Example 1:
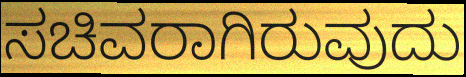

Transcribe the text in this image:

ಸಚಿವರಾಗಿರುವುದು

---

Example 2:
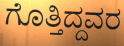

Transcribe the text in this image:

ಗೊತ್ತಿದ್ದವರ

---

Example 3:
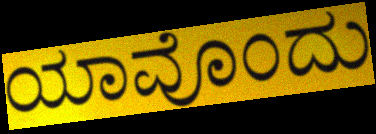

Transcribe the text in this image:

ಯಾವೊಂದು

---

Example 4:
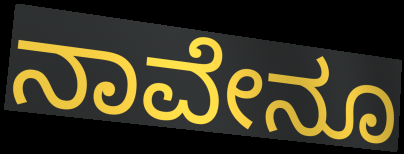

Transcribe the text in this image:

ನಾವೇನೂ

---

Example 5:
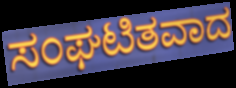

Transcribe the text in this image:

ಸಂಘಟಿತವಾದ